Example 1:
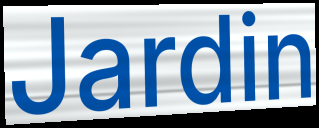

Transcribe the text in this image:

Jardin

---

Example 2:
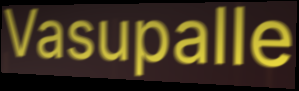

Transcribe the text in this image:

Vasupalle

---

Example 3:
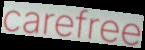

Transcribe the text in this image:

carefree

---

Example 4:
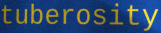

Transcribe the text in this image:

tuberosity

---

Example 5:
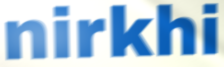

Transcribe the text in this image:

nirkhi